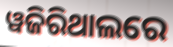
ୱଜିରିଥାଲରେ